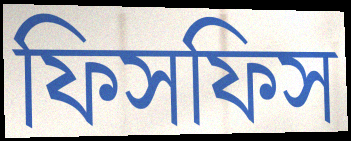
ফিসফিস